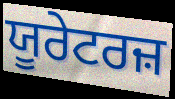
ਯੂਰੇਟਰਜ਼